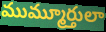
ముమ్మూర్తులా